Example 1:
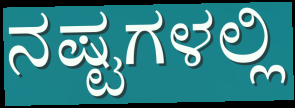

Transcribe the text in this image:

ನಷ್ಟಗಳಲ್ಲಿ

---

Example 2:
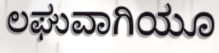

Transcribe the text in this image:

ಲಘುವಾಗಿಯೂ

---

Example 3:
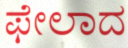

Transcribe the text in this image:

ಫೇಲಾದ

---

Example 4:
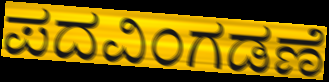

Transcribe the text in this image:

ಪದವಿಂಗಡಣೆ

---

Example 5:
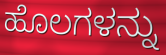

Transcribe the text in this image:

ಹೊಲಗಳನ್ನು